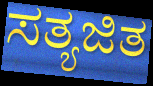
ಸತ್ಯಜಿತ